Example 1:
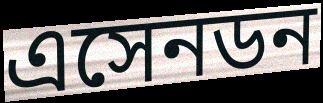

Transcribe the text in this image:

এসেনডন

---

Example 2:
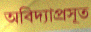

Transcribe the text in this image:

অবিদ্যাপ্রসূত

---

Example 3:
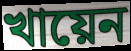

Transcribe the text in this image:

খায়েন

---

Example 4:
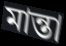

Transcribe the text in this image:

মান্তা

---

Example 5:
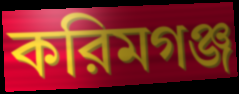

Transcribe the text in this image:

করিমগঞ্জ